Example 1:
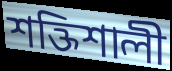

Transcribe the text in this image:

শক্তিশালী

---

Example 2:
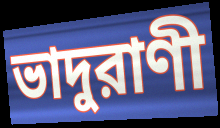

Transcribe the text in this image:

ভাদুরাণী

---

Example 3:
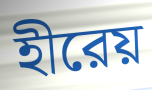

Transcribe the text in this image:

হীরেয়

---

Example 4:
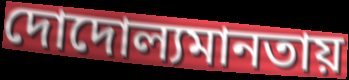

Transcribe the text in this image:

দোদোল্যমানতায়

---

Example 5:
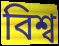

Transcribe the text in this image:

বিশ্ব